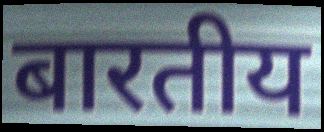
बारतीय